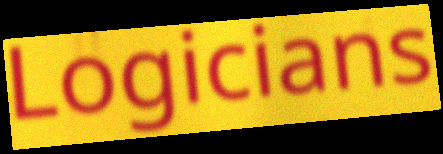
Logicians